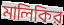
মালিকির